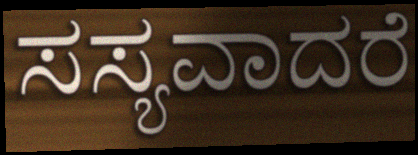
ಸಸ್ಯವಾದರೆ